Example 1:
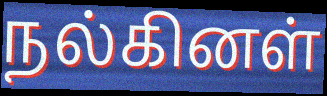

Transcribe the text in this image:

நல்கினள்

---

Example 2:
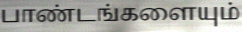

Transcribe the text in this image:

பாண்டங்களையும்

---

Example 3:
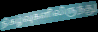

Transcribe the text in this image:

நிகழ்வுகளிலிருந்து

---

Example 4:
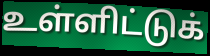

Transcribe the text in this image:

உள்ளிட்டுக்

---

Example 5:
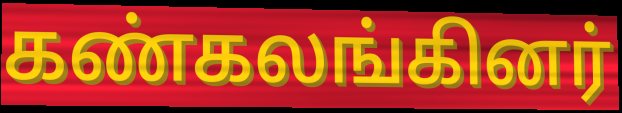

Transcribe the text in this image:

கண்கலங்கினர்